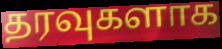
தரவுகளாக